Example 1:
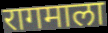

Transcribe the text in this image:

रागमाला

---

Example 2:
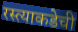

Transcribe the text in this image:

रस्त्याकडेची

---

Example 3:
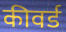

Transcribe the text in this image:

कीवर्ड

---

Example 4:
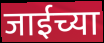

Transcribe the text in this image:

जाईच्या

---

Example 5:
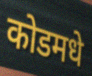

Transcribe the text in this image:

कोडमधे